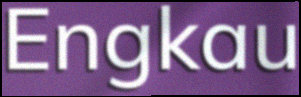
Engkau